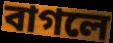
বাগলে